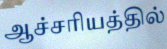
ஆச்சரியத்தில்